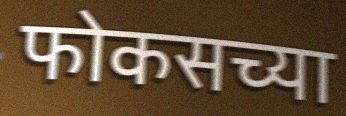
फोकसच्या